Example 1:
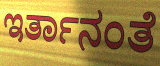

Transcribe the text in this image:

ಇರ್ತಾನಂತೆ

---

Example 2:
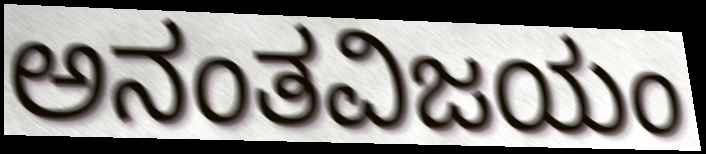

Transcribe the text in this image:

ಅನಂತವಿಜಯಂ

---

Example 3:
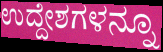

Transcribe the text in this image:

ಉದ್ದೇಶಗಳನ್ನೂ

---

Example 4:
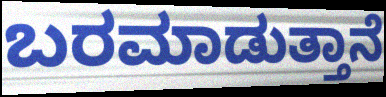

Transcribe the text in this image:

ಬರಮಾಡುತ್ತಾನೆ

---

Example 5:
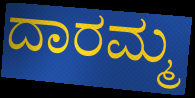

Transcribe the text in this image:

ದಾರಮ್ಮ